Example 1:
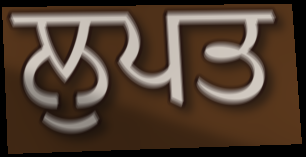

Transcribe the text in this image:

ਲੁਪਤ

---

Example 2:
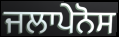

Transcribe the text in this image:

ਜਲਾਪੇਨੋਸ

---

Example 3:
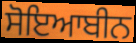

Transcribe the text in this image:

ਸੋਇਆਬੀਨ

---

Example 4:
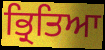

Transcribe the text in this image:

ਭ੍ਰਿਤਿਆ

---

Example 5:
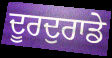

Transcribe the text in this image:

ਦੂਰਦੁਰਾਡੇ